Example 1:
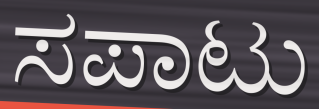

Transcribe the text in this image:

ಸಪಾಟು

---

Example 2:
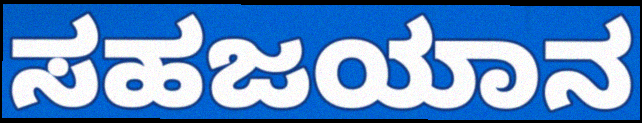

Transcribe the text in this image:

ಸಹಜಯಾನ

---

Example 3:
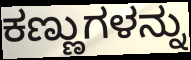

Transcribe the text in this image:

ಕಣ್ಣುಗಳನ್ನು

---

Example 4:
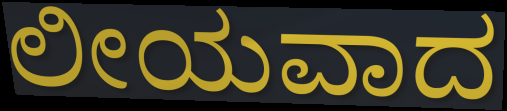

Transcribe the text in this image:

ಲೀಯವಾದ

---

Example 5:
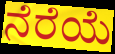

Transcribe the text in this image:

ನೆರೆಯೆ